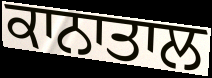
ਕਾਨਾਤਾਲ